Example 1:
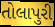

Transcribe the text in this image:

તોલાપુરી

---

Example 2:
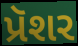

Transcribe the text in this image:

પ્રૅશર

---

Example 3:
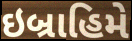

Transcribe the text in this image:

ઇબ્રાહિમે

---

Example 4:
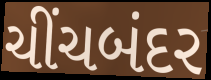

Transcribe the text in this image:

ચીંચબંદર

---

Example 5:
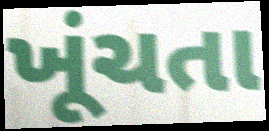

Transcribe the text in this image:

ખૂંચતા